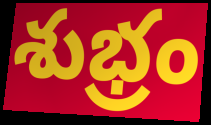
శుభ్రం